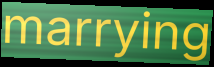
marrying